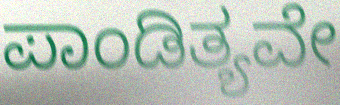
ಪಾಂಡಿತ್ಯವೇ